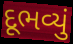
દૂભવ્યું